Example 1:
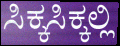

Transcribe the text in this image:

ಸಿಕ್ಕಸಿಕ್ಕಲ್ಲಿ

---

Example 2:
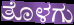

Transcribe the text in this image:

ತೊಳಗು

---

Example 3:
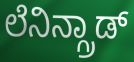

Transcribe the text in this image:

ಲೆನಿನ್ಗ್ರಾಡ್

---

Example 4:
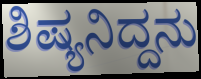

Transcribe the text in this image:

ಶಿಷ್ಯನಿದ್ದನು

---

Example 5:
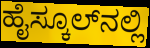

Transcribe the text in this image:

ಹೈಸ್ಕೂಲ್‍ನಲ್ಲಿ